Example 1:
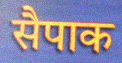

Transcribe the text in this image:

सैपाक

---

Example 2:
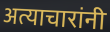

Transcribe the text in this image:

अत्याचारांनी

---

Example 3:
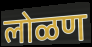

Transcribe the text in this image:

लोळण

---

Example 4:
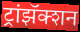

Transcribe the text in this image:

ट्रांझॅक्शन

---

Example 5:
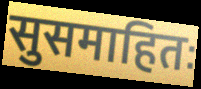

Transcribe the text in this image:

सुसमाहितः